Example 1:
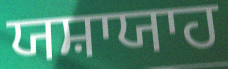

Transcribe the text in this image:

ਯਸ਼ਾਯਾਹ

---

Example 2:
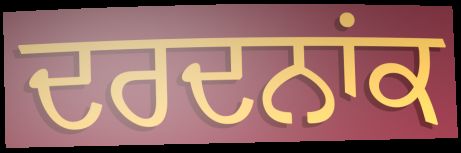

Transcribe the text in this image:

ਦਰਦਨਾਂਕ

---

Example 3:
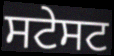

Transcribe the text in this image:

ਸਟੇਸਟ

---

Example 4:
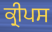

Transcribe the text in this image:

ਕ੍ਰੀਪਸ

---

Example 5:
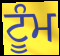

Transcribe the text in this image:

ਟੂੰਮ